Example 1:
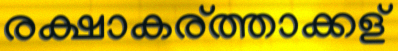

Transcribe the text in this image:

രക്ഷാകര്ത്താക്കള്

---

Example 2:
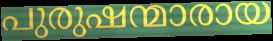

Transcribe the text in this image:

പുരുഷന്മാരായ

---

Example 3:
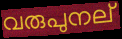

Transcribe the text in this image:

വരുപുനല്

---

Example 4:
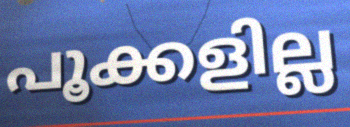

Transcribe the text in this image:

പൂക്കളില്ല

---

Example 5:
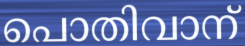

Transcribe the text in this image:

പൊതിവാന്